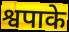
श्वपाके